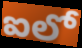
ఐలో